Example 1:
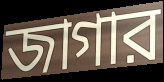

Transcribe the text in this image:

জাগার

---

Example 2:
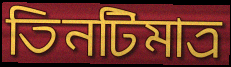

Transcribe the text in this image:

তিনটিমাত্র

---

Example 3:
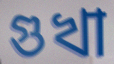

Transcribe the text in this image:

গুখা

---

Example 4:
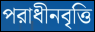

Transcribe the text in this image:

পরাধীনবৃত্তি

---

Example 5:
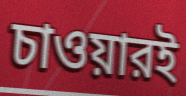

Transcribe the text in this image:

চাওয়ারই